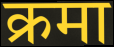
क्रमा